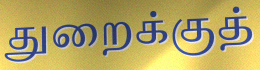
துறைக்குத்